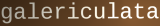
galericulata